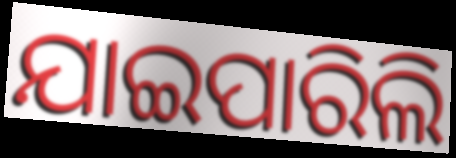
ଯାଇପାରିଲି